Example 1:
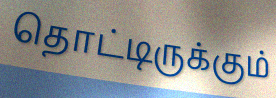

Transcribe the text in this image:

தொட்டிருக்கும்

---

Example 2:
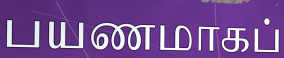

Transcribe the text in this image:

பயணமாகப்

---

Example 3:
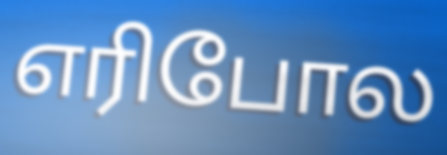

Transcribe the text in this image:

எரிபோல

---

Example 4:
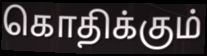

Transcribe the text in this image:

கொதிக்கும்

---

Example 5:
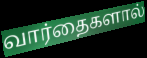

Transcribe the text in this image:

வார்தைகளால்